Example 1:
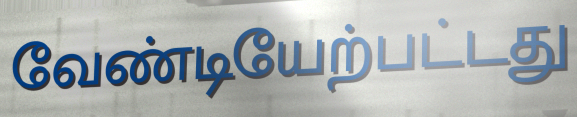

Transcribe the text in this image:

வேண்டியேற்பட்டது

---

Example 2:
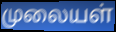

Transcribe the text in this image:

முலையள்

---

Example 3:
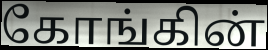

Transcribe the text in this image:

கோங்கின்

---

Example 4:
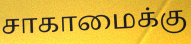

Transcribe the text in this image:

சாகாமைக்கு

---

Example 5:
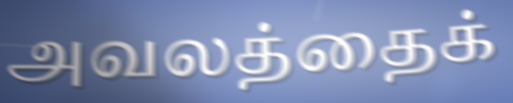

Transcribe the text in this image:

அவலத்தைக்